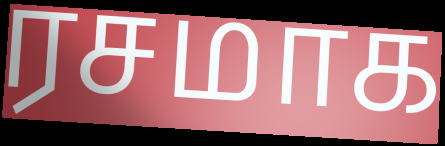
ரசமாக